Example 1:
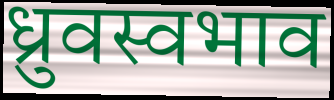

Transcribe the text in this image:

ध्रुवस्वभाव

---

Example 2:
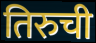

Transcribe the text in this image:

तिरुची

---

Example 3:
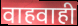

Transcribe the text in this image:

वाहवाही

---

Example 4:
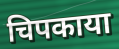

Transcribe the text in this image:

चिपकाया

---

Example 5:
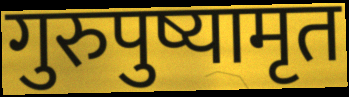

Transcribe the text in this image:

गुरुपुष्यामृत